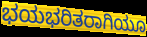
ಭಯಭರಿತರಾಗಿಯೂ